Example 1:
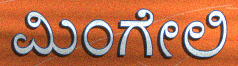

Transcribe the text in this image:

ಮಿಂಗೇಲಿ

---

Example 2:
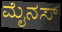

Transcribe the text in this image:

ಮೈನಸ್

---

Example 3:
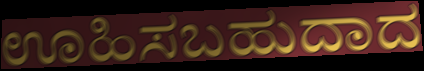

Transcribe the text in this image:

ಊಹಿಸಬಹುದಾದ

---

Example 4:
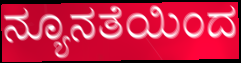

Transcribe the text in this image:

ನ್ಯೂನತೆಯಿಂದ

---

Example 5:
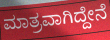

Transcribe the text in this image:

ಮಾತ್ರವಾಗಿದ್ದೇನೆ